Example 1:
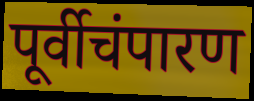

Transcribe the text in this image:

पूर्वीचंपारण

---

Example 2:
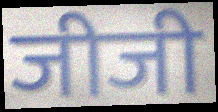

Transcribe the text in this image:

जीजी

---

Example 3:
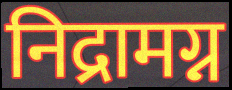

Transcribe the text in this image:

निद्रामग्न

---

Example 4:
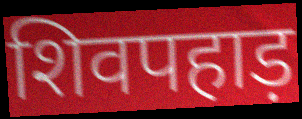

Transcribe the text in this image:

शिवपहाड़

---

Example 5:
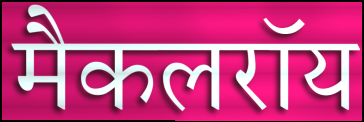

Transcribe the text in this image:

मैकलरॉय